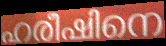
ഹരീഷിനെ